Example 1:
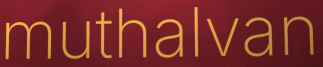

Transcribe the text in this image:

muthalvan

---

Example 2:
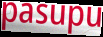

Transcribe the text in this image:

pasupu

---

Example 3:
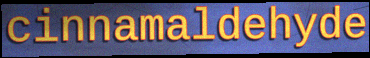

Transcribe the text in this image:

cinnamaldehyde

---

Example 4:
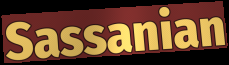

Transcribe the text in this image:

Sassanian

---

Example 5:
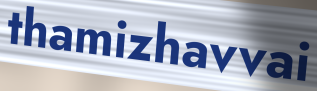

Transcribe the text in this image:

thamizhavvai